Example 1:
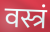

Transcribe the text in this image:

वस्त्रं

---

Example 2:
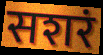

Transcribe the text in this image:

सशरं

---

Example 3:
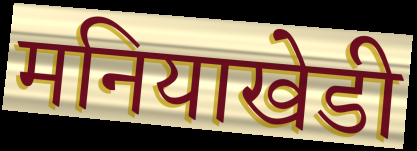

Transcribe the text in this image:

मनियाखेडी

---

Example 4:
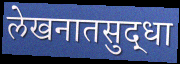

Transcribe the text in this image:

लेखनातसुद्धा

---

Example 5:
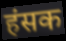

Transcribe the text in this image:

हंसक